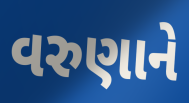
વરુણાને